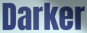
Darker